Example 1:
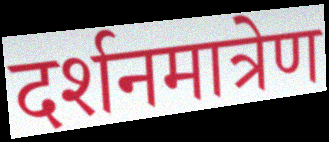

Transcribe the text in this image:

दर्शनमात्रेण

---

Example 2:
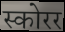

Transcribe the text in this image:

स्कोरर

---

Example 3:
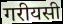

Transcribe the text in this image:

गरीयसी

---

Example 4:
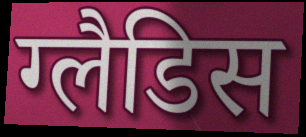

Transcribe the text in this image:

ग्लैडिस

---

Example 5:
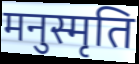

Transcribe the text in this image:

मनुस्मृति